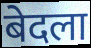
बेदला